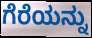
ಗೆರೆಯನ್ನು